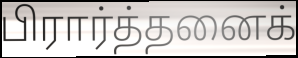
பிரார்த்தனைக்